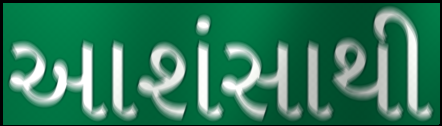
આશંસાથી